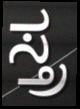
ಸ್ತ್ರ